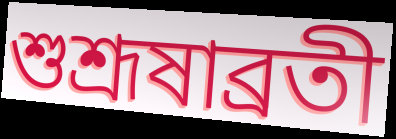
শুশ্রূষাব্রতী